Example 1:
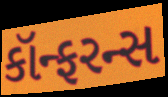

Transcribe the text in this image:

કૉન્ફરન્સ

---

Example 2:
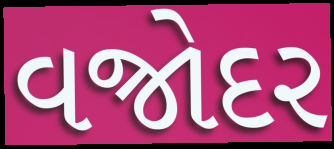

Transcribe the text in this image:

વજ્રોદર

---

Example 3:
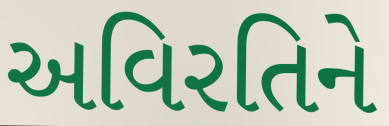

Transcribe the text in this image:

અવિરતિને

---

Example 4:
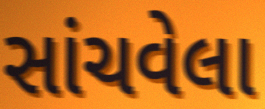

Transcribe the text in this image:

સાંચવેલા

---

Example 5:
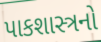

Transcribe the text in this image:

પાકશાસ્ત્રનો